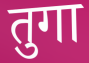
तुगा